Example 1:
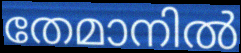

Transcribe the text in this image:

തേമാനിൽ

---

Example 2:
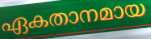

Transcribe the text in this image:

ഏകതാനമായ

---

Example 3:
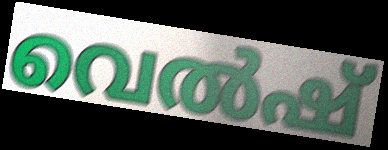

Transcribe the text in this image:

വെൽഷ്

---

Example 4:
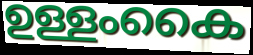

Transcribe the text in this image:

ഉള്ളംകൈ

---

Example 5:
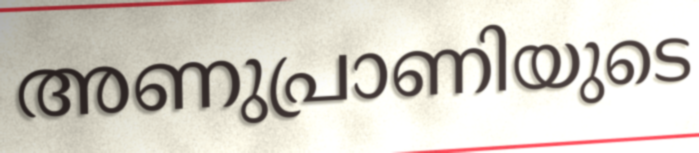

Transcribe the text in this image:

അണുപ്രാണിയുടെ